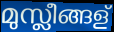
മുസ്ലീങ്ങള്